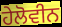
ਹੇਲੋਵੀਨ